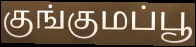
குங்குமப்பூ